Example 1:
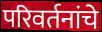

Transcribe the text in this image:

परिवर्तनांचे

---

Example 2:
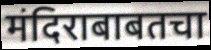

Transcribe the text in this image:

मंदिराबाबतचा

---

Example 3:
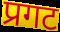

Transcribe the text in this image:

प्रगट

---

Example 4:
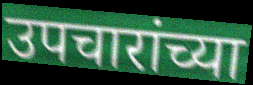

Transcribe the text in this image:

उपचारांच्या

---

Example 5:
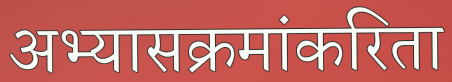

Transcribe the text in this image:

अभ्यासक्रमांकरिता